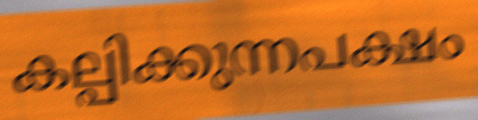
കല്പിക്കുന്നപക്ഷം